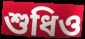
শুধিও